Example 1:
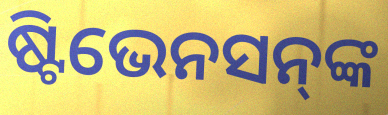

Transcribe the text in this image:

ଷ୍ଟିଭେନସନ୍‍ଙ୍କ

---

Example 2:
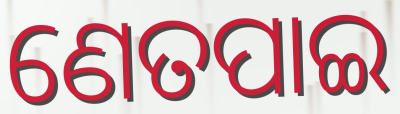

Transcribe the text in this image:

ଣେତପାଇ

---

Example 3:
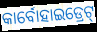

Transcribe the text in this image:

କାର୍ବୋହାଇଡ୍ରେଟ୍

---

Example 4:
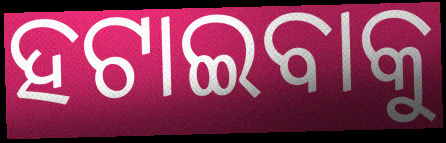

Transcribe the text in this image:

ହଟାଇବାକୁ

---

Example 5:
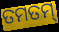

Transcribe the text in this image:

ତମତମ୍